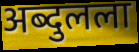
अब्दुलला